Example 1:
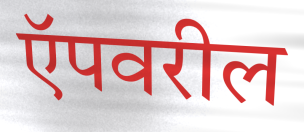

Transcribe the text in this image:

ऍपवरील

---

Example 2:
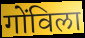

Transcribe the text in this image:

गोंविला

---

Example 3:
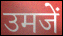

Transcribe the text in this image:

उमजें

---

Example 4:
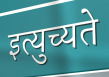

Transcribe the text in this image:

इत्युच्यते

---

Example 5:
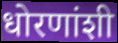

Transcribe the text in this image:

धोरणांशी